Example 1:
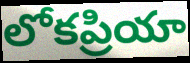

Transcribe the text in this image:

లోకప్రియా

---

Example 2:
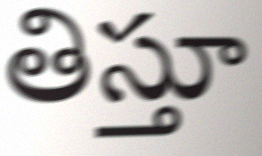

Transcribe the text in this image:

తిస్తూ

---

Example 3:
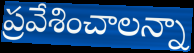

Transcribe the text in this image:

ప్రవేశించాలన్నా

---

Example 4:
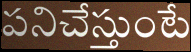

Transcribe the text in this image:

పనిచేస్తుంటే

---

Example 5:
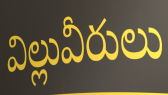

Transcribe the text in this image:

విల్లువీరులు